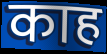
काह